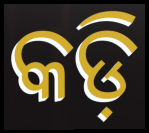
କଡ଼ି